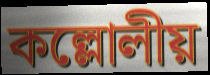
কল্লোলীয়